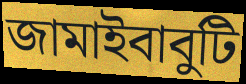
জামাইবাবুটি